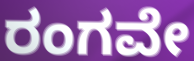
ರಂಗವೇ